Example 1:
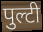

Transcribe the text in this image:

पुल्टी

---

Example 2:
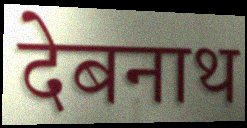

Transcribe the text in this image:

देबनाथ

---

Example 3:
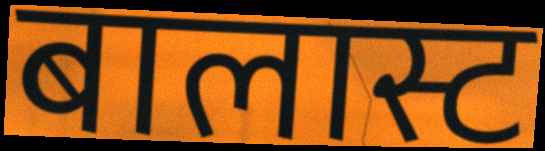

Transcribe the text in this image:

बालास्ट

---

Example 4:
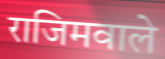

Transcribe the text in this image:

राजिमवाले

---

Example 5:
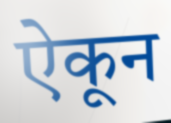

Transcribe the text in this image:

ऐकून